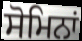
ਸੋਮਿਨਾਂ